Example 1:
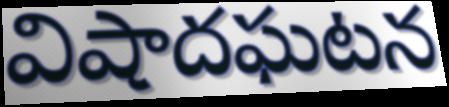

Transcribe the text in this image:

విషాదఘటన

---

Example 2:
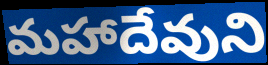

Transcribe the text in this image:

మహాదేవుని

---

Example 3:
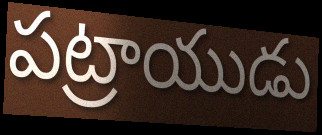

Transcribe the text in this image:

పట్రాయుడు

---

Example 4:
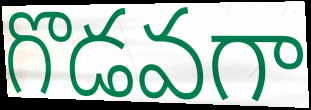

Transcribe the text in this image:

గొడవగా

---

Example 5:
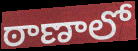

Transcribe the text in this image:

ఠాణాలో